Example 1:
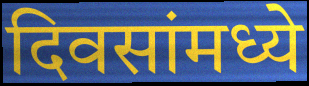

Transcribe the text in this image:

दिवसांमध्ये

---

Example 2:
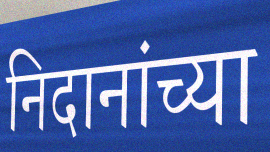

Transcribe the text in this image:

निदानांच्या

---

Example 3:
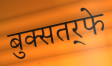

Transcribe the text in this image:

बुक्सतर्फे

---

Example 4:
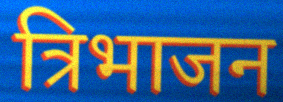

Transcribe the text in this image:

त्रिभाजन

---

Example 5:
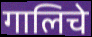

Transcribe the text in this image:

गालिचे